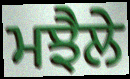
ਮਝੈਲੇ